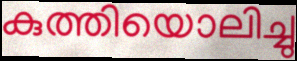
കുത്തിയൊലിച്ചു